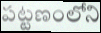
పట్టణంలోని